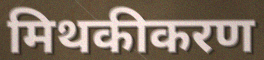
मिथकीकरण